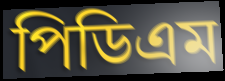
পিডিএম